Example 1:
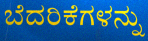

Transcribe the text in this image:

ಬೆದರಿಕೆಗಳನ್ನು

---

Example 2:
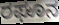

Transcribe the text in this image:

ರಘೂನ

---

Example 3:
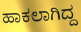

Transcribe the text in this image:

ಹಾಕಲಾಗಿದ್ದ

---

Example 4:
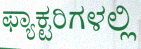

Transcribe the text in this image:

ಫ್ಯಾಕ್ಟರಿಗಳಲ್ಲಿ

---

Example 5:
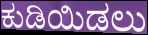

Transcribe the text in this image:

ಕುಡಿಯಿಡಲು